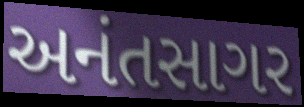
અનંતસાગર